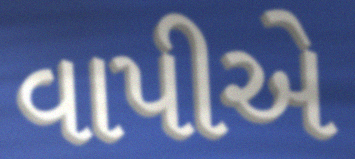
વાપીએ